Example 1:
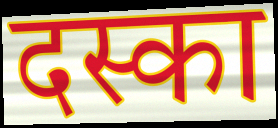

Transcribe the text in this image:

दस्का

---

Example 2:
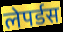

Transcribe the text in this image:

लेपर्डस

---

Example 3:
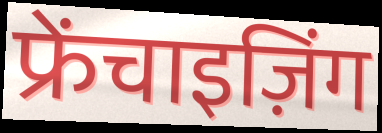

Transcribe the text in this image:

फ्रेंचाइज़िंग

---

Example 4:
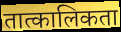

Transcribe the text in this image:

तात्कालिकता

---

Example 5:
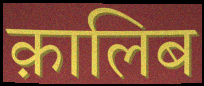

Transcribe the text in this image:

क़ालिब